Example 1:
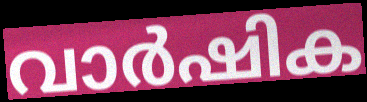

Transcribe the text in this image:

വാർഷിക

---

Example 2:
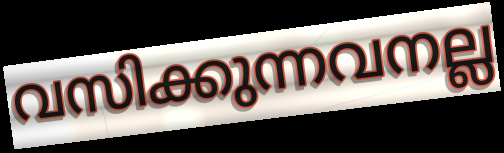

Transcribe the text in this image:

വസിക്കുന്നവനല്ല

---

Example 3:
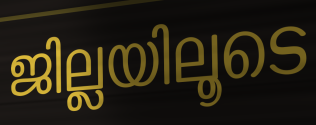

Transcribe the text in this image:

ജില്ലയിലൂടെ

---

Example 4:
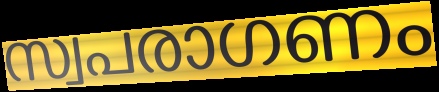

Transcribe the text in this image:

സ്വപരാഗണം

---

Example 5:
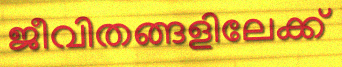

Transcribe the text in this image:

ജീവിതങ്ങളിലേക്ക്